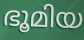
ഭൂമിയ